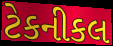
ટેકનીકલ